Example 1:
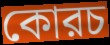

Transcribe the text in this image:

কোরচ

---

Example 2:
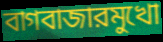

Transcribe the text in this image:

বাগবাজারমুখো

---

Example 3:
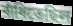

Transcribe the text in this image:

বাঁধিতেছিল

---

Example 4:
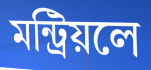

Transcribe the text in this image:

মন্ট্রিয়লে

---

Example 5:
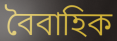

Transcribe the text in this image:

বৈবাহিক